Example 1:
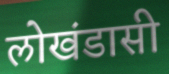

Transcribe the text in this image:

लोखंडासी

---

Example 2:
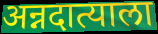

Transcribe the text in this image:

अन्नदात्याला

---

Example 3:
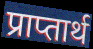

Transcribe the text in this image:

प्राप्तार्थ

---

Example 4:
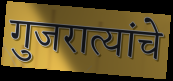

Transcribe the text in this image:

गुजरात्यांचे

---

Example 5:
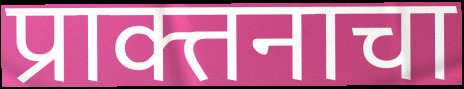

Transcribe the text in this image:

प्राक्तनाचा